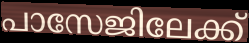
പാസേജിലേക്ക്